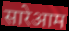
सारेआम